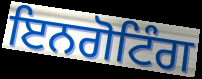
ਇਨਗੋਟਿੰਗ